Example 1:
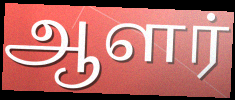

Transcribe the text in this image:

ஆளர்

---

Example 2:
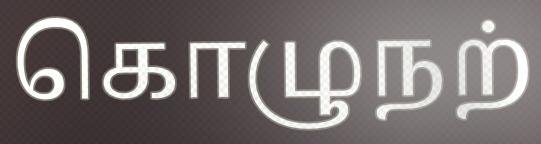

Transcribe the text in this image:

கொழுநற்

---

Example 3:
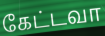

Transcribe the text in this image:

கேட்டவா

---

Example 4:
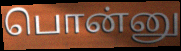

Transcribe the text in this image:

பொன்னு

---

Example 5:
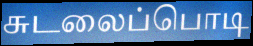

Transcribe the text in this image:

சுடலைப்பொடி